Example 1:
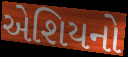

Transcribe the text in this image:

એશિયનો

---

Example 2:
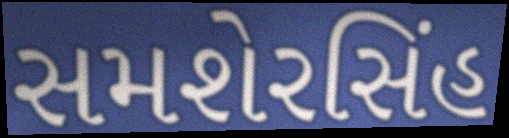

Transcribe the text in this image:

સમશેરસિંહ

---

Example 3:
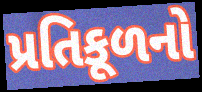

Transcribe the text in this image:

પ્રતિકૂળનો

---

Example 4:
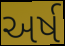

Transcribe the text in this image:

અર્ષ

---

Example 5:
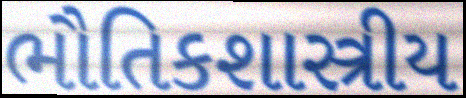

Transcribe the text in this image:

ભૌતિકશાસ્ત્રીય